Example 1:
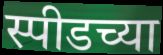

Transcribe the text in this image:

स्पीडच्या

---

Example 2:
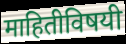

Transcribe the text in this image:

माहितीविषयी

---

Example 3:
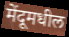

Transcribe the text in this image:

मेंदूमधील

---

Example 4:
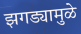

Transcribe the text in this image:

झगड्यामुळे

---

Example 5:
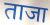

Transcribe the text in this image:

ताजा